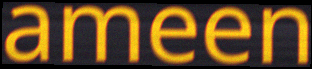
ameen